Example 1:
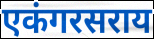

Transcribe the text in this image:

एकंगरसराय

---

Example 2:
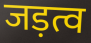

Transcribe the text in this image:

जड़त्व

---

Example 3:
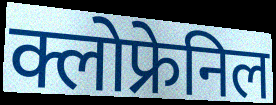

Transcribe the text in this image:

क्लोफ्रेनिल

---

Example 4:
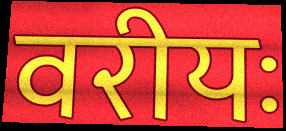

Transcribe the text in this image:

वरीयः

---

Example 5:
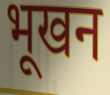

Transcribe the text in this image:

भूखन